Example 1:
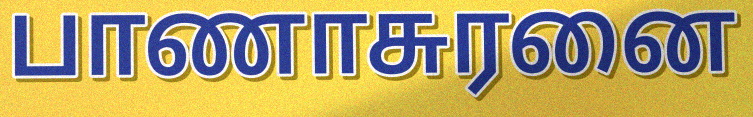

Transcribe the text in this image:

பாணாசுரனை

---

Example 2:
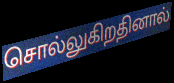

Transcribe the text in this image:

சொல்லுகிறதினால்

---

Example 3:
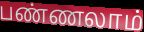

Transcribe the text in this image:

பண்ணலாம்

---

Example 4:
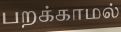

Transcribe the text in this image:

பறக்காமல்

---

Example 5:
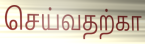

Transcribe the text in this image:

செய்வதற்கா